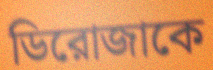
ডিরোজাকে